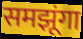
समझूंगा